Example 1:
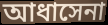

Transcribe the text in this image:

আধাসেনা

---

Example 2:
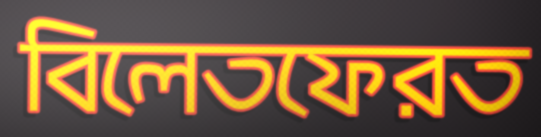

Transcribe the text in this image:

বিলেতফেরত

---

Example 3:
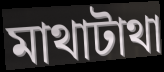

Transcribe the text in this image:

মাথাটাথা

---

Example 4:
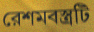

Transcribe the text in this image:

রেশমবস্ত্রটি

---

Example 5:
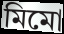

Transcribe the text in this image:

মিমো